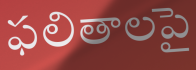
ఫలితాలపై